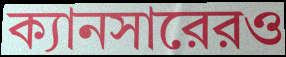
ক্যানসারেরও